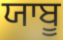
ਯਾਬੂ